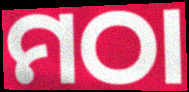
ମଠା